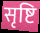
सृष्टि